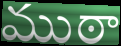
ముఠా